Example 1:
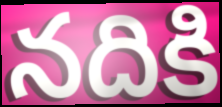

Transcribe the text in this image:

నదికి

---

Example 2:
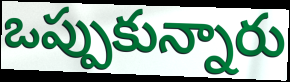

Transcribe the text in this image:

ఒప్పుకున్నారు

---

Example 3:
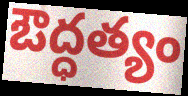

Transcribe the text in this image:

ఔద్ధత్యం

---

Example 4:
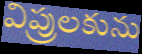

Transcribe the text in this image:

విప్రులకును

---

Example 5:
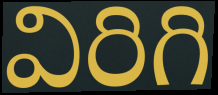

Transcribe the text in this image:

విరిగి